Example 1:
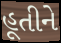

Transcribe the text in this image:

હૂતીને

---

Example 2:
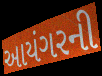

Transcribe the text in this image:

આયંગરની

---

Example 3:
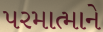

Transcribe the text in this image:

પરમાત્માને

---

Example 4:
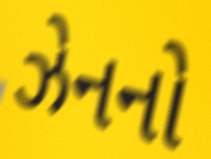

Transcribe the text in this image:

ઝેનનો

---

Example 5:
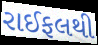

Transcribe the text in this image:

રાઈફલથી